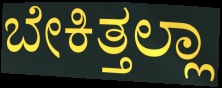
ಬೇಕಿತ್ತಲ್ಲಾ